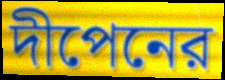
দীপেনের